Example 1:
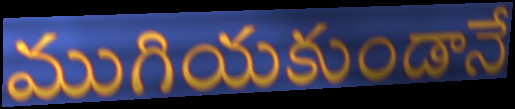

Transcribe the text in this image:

ముగియకుండానే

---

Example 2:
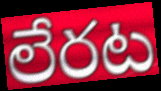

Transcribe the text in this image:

లేరట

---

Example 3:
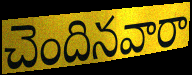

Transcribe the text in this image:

చెందినవారా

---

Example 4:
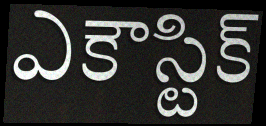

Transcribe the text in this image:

ఎకౌస్టిక్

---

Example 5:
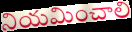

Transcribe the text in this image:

నియమించాలి